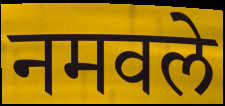
नमवले